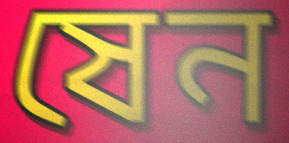
ষেন